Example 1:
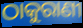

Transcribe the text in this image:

ଠାକୁରାଣୀ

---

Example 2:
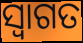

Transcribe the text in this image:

ସ୍ବାଗତ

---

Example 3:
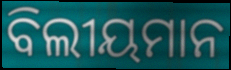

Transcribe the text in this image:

ବିଲୀୟମାନ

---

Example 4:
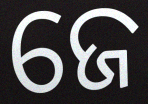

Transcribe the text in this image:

ଜେ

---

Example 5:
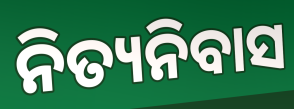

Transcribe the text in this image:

ନିତ୍ୟନିବାସ